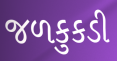
જળકુકડી